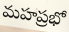
మహప్రభో